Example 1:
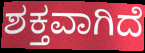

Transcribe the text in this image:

ಶಕ್ತವಾಗಿದೆ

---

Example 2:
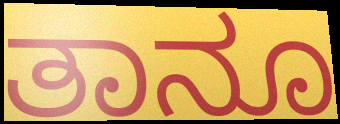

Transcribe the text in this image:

ತಾನೂ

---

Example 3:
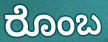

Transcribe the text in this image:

ರೊಂಬ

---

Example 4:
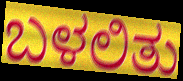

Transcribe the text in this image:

ಬಳಲಿತು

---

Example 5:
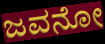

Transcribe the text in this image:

ಜವನೋ